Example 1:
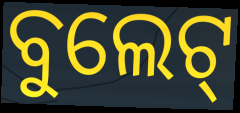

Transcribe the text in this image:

ବୁଲେଟ୍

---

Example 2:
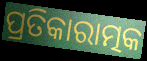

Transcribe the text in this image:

ପ୍ରତିକାରାତ୍ମକ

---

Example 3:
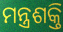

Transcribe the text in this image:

ମନ୍ତ୍ରଶକ୍ତି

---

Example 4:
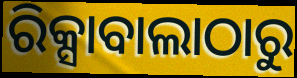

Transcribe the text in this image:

ରିକ୍ସାବାଲାଠାରୁ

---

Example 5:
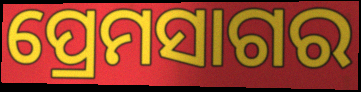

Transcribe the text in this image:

ପ୍ରେମସାଗର